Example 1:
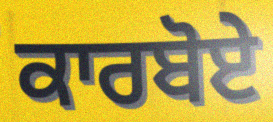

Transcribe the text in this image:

ਕਾਰਬੋਏ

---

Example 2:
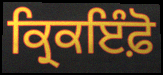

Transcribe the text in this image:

ਕ੍ਰਿਕਇੰਫ਼ੋ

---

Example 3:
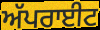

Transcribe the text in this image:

ਅੱਪਰਾਈਟ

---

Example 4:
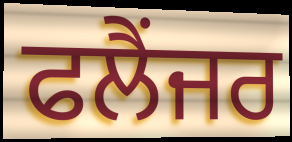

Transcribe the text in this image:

ਫਲੈਂਜਰ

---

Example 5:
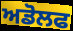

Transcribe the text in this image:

ਅਡੋਲਫ